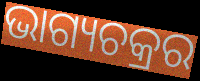
ଭାଗ୍ୟଚକ୍ରର